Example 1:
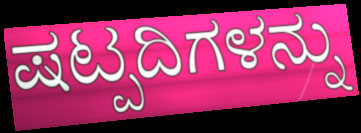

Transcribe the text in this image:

ಷಟ್ಪದಿಗಳನ್ನು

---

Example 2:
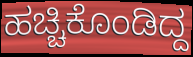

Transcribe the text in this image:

ಹಚ್ಚಿಕೊಂಡಿದ್ದ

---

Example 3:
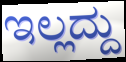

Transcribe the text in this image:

ಇಲ್ಲದ್ದು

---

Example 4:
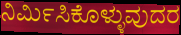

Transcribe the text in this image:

ನಿರ್ಮಿಸಿಕೊಳ್ಳುವುದರ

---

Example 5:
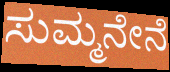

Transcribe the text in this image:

ಸುಮ್ಮನೇನೆ